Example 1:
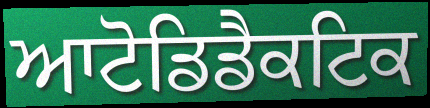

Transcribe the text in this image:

ਆਟੋਡਿਡੈਕਟਿਕ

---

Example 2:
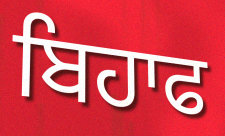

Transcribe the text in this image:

ਬਿਹਾਫ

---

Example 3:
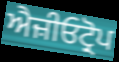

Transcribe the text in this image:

ਐਜ਼ੀਓਟ੍ਰੋਪ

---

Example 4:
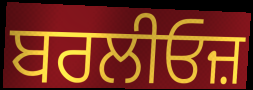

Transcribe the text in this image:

ਬਰਲੀਓਜ਼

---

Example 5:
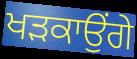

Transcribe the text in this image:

ਖੜਕਾਉਂਗੇ